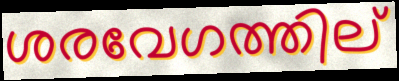
ശരവേഗത്തില്